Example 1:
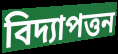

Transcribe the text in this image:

বিদ্যাপত্তন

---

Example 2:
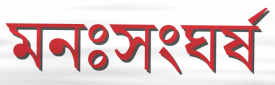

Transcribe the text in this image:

মনঃসংঘর্ষ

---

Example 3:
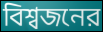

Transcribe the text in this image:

বিশ্বজনের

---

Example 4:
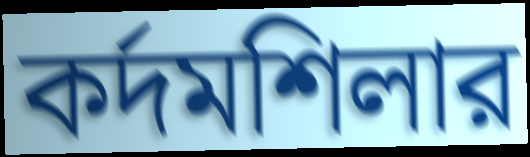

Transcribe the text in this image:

কর্দমশিলার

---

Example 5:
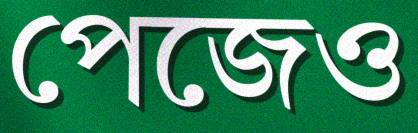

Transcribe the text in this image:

পেজেও